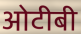
ओटीबी